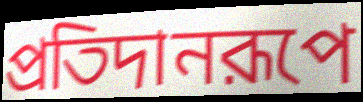
প্রতিদানরূপে